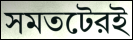
সমতটেরই